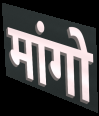
मांगो